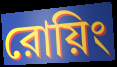
রোয়িং